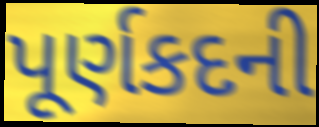
પૂર્ણકદની